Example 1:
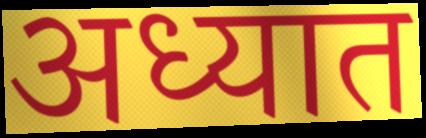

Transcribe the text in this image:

अध्यात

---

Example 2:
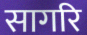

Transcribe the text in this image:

सागरि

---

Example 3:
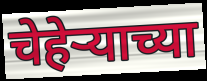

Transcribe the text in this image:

चेहेऱ्याच्या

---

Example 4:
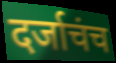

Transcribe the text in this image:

दर्जाचंच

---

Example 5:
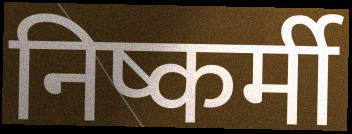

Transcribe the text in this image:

निष्कर्मी